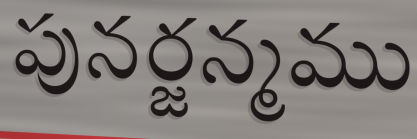
పునర్జన్మము